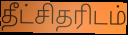
தீட்சிதரிடம்